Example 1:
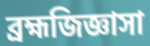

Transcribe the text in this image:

ব্রহ্মজিজ্ঞাসা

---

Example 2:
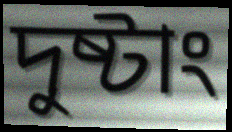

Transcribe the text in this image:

দুষ্টাং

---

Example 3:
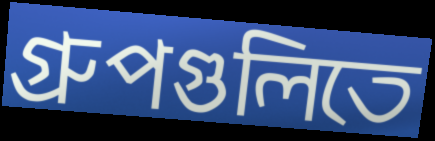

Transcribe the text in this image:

গ্রুপগুলিতে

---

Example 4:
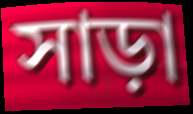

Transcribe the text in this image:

সাড়া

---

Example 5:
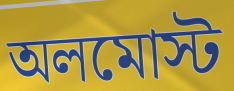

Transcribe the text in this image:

অলমোস্ট